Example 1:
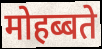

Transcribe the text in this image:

मोहब्बते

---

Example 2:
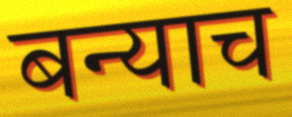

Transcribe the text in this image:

बन्याच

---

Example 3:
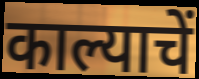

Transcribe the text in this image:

काल्याचें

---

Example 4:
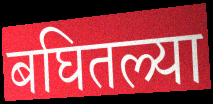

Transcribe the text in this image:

बघितल्या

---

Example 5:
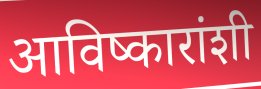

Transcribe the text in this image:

आविष्कारांशी